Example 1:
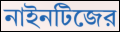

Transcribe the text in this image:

নাইনটিজের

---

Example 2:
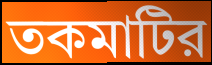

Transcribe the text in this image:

তকমাটির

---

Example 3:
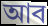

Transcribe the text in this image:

আব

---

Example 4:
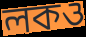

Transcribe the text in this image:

লকও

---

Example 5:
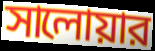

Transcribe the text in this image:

সালোয়ার